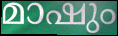
മാഷും